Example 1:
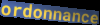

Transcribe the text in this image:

ordonnance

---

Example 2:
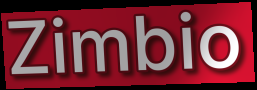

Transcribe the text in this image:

Zimbio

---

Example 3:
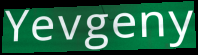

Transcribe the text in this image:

Yevgeny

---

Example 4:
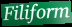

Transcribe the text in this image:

Filiform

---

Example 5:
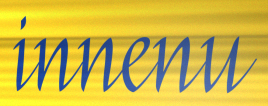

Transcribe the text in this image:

innenu